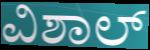
ವಿಶಾಲ್